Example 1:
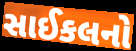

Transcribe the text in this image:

સાઈકલનો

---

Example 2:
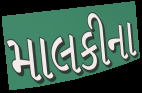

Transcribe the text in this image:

માલકીના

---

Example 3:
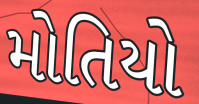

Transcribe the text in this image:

મોતિયો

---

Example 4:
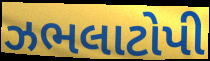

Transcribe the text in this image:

ઝભલાટોપી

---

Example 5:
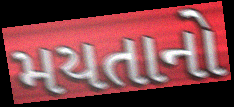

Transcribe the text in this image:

મયતાનો